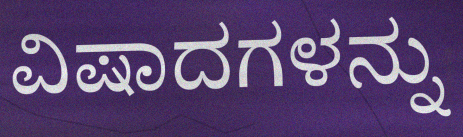
ವಿಷಾದಗಳನ್ನು